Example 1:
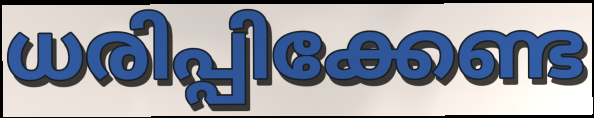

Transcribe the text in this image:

ധരിപ്പിക്കേണ്ട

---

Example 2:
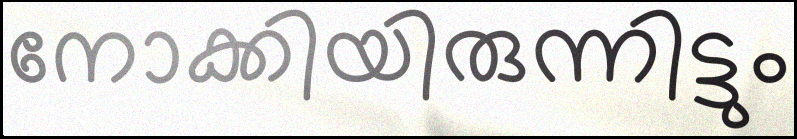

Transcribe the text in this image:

നോക്കിയിരുന്നിട്ടും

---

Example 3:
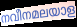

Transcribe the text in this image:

നവീനമലയാള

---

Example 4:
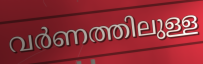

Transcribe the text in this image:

വർണത്തിലുള്ള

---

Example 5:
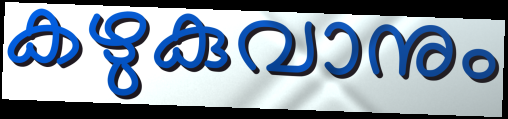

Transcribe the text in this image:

കഴുകുവാനും